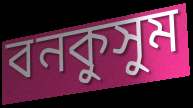
বনকুসুম